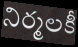
నిర్మలకీ